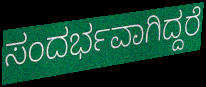
ಸಂದರ್ಭವಾಗಿದ್ದರೆ